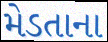
મેડતાના